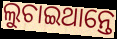
ଲୁଚାଇଥାନ୍ତେ